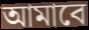
আমাবে